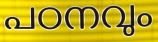
പഠനവും